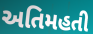
અતિમહતી